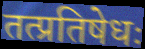
तत्प्रतिषेधः